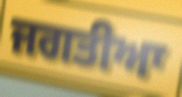
ਜਗਤੀਆ